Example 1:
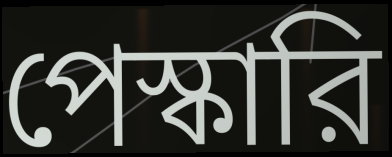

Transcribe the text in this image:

পেস্কারি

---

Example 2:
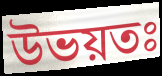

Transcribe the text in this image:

উভয়তঃ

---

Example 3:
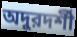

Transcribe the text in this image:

অদুরদর্শী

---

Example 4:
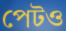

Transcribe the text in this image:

পেটও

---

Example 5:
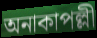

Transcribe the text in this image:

অনাকাপল্লী